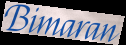
Bimaran